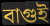
বাগুই